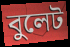
বুলেট